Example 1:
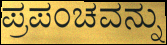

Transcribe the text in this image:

ಪ್ರಪಂಚವನ್ನು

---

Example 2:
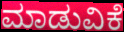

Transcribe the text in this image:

ಮಾಡುವಿಕೆ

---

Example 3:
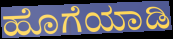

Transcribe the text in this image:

ಹೊಗೆಯಾಡಿ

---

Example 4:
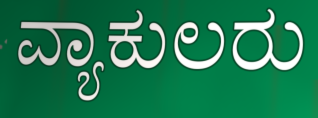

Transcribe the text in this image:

ವ್ಯಾಕುಲರು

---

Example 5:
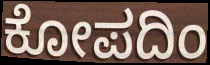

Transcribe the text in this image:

ಕೋಪದಿಂ